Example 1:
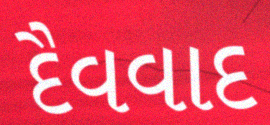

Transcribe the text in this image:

દૈવવાદ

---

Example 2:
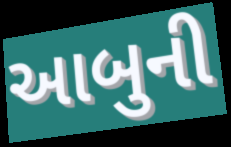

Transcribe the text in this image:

આબુની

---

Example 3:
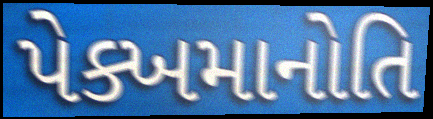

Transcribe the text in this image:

પેક્ખમાનોતિ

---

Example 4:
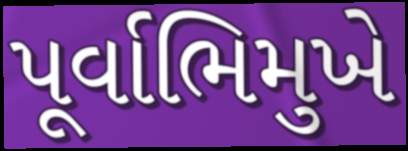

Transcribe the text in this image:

પૂર્વાભિમુખે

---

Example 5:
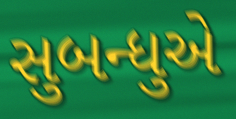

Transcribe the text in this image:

સુબન્ધુએ